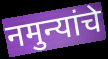
नमुन्यांचे